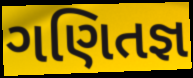
ગણિતજ્ઞ